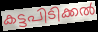
കട്ടപിടിക്കൽ